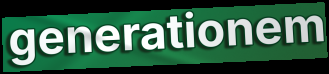
generationem